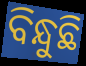
ବିନ୍ଧୁଛି